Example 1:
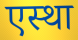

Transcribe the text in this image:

एस्था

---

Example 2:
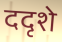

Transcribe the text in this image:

ददृशे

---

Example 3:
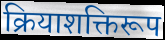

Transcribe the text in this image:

क्रियाशक्तिरूप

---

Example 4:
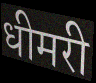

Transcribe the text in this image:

धीमरी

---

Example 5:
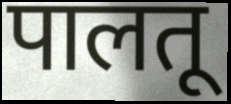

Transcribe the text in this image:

पालतू